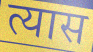
त्यास